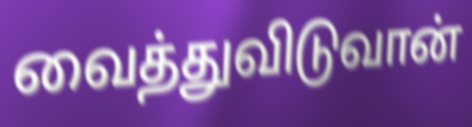
வைத்துவிடுவான்